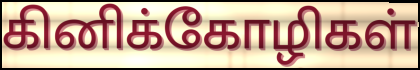
கினிக்கோழிகள்